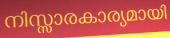
നിസ്സാരകാര്യമായി